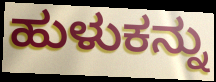
ಹುಳುಕನ್ನು